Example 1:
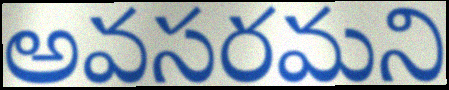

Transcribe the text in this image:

అవసరమని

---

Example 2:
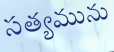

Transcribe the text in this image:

సత్యమును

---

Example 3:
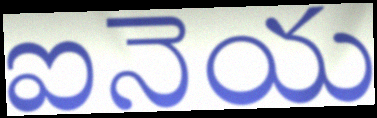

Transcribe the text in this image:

ఐనెయ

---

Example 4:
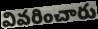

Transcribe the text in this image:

వివరించారు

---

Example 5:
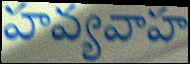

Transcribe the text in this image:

హవ్యవాహ